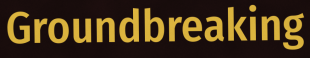
Groundbreaking